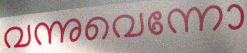
വന്നുവെന്നോ